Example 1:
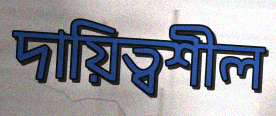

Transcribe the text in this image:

দায়িত্বশীল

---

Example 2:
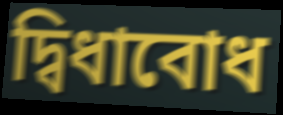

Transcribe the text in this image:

দ্বিধাবোধ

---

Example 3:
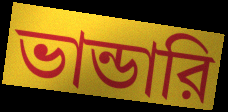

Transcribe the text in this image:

ভান্ডারি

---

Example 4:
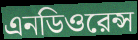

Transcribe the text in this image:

এনডিওরেন্স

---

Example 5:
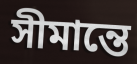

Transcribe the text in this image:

সীমান্তে